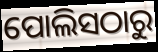
ପୋଲିସଠାରୁ